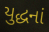
યુદ્ધનાં